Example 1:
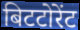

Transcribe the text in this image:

बिटटोरेंट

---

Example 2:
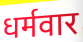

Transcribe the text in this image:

धर्मवार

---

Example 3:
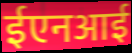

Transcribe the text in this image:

ईएनआई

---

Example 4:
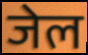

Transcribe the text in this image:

जेल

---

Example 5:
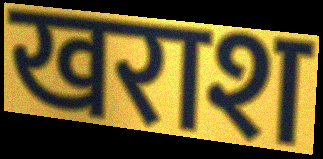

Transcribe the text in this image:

खराश